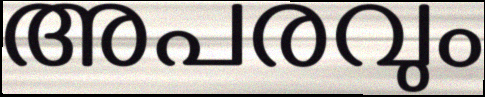
അപരവും